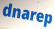
dnarep